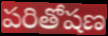
పరితోషణ